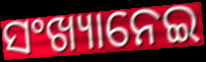
ସଂଖ୍ୟାନେଇ